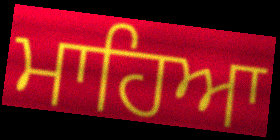
ਮਾਹਿਆ